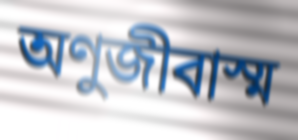
অণুজীবাস্ম